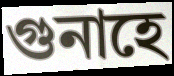
গুনাহে